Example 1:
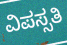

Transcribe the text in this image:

ವಿಪಸ್ಸತಿ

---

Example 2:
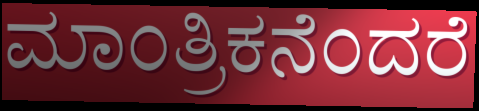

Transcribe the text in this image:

ಮಾಂತ್ರಿಕನೆಂದರೆ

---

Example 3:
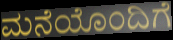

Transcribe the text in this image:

ಮನೆಯೊಂದಿಗೆ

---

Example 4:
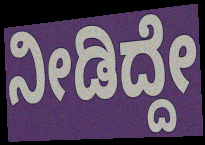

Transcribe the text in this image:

ನೀಡಿದ್ದೇ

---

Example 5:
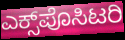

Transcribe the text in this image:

ಎಕ್ಸ್‌ಪೊಸಿಟರಿ